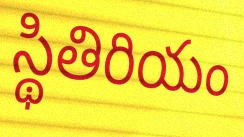
స్థితిరియం